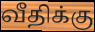
வீதிக்கு